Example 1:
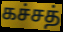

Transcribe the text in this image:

கச்சத்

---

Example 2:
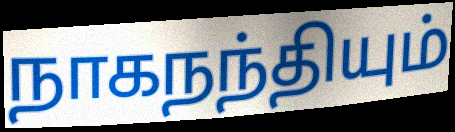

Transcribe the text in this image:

நாகநந்தியும்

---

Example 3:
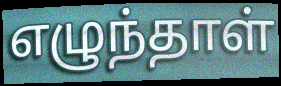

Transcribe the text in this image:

எழுந்தாள்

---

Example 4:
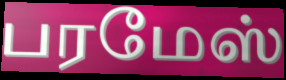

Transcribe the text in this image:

பரமேஸ்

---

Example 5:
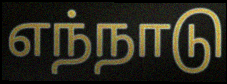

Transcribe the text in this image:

எந்நாடு